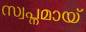
സ്വപ്നമായ്